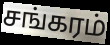
சங்கரம்